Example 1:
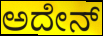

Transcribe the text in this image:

ಅದೇನ್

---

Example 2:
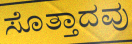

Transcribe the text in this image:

ಸೊತ್ತಾದವು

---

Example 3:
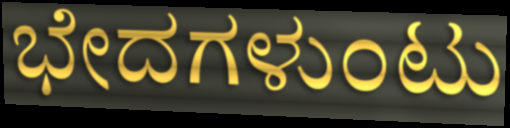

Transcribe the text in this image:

ಭೇದಗಳುಂಟು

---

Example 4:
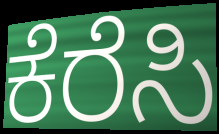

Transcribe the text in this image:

ಕೆರೆಸಿ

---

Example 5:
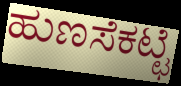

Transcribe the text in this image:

ಹುಣಸೆಕಟ್ಟೆ